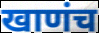
खाणंच